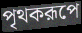
পৃথকরূপে